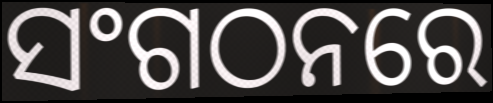
ସଂଗଠନରେ